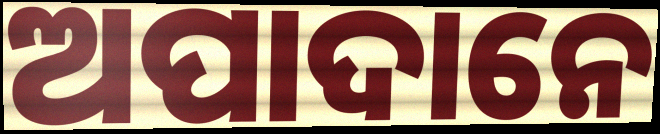
ଅପାଦାନେ